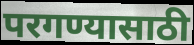
परगण्यासाठी